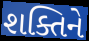
શક્તિને